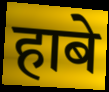
हाबे